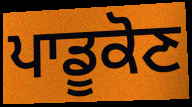
ਪਾਡੂਕੋਣ